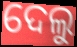
ଦେଲୁ